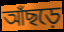
আঁছড়ে